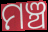
ମଞ୍ଚ